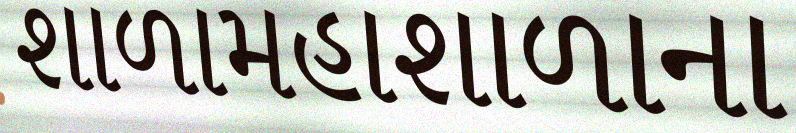
શાળામહાશાળાના